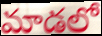
మాడలో